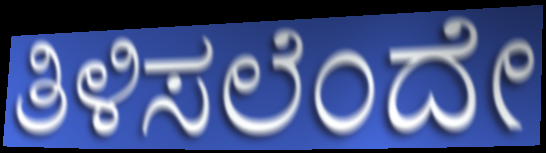
ತಿಳಿಸಲೆಂದೇ